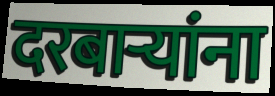
दरबाऱ्यांना